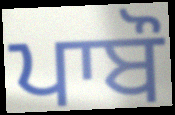
ਪਾਬੌ